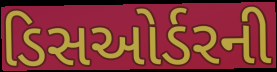
ડિસઓર્ડરની